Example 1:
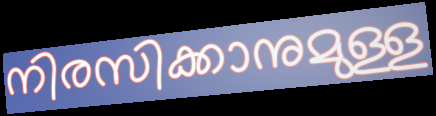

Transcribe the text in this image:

നിരസിക്കാനുമുള്ള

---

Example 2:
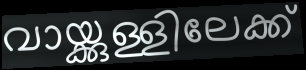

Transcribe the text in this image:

വായ്ക്കുള്ളിലേക്ക്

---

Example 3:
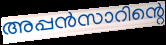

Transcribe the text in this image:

അപ്പൻസാറിന്റെ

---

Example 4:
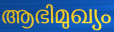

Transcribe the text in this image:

ആഭിമുഖ്യം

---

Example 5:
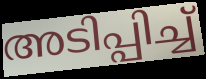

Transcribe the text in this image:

അടിപ്പിച്ച്